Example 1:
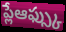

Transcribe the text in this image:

ప్లేఆఫ్స్కు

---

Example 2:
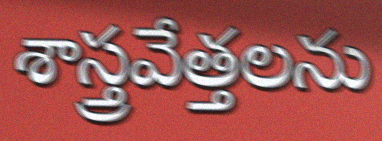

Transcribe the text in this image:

శాస్త్రవేత్తలను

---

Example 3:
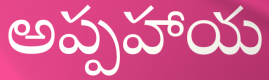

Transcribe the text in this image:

అప్పహాయ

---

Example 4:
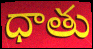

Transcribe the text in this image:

ధాతు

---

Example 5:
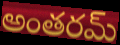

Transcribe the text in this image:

అంతరమ్